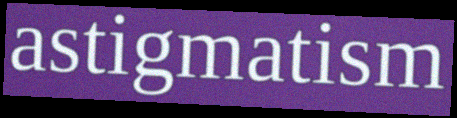
astigmatism